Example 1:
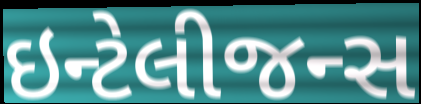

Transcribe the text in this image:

ઇન્ટેલીજન્સ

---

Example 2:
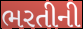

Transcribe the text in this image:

ભરતીની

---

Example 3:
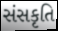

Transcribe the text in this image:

સંસકૃતિ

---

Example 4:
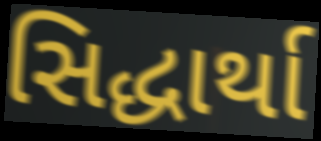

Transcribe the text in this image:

સિદ્ધાર્થા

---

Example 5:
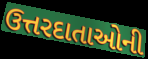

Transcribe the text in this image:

ઉત્તરદાતાઓની